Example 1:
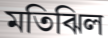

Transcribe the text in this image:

মতিঝিল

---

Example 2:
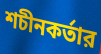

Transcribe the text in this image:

শচীনকর্তার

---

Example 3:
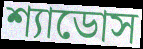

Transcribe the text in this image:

শ্যাডোস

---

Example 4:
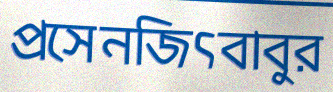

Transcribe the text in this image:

প্রসেনজিৎবাবুর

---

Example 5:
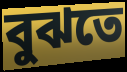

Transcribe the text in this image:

বুঝতে